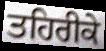
ਤਹਿਰੀਕੇ